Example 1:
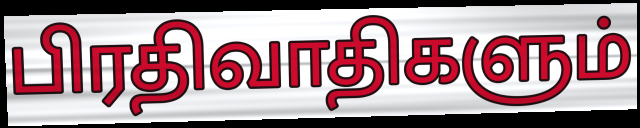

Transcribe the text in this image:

பிரதிவாதிகளும்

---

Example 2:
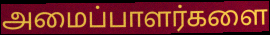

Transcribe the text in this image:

அமைப்பாளர்களை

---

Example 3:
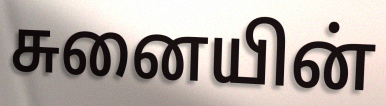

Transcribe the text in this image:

சுனையின்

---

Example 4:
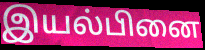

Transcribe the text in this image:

இயல்பினை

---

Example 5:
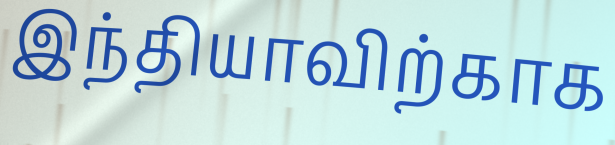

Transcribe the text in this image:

இந்தியாவிற்காக